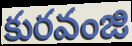
కురవంజి